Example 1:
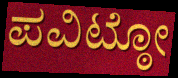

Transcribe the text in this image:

ಪವಿಟ್ಠೋ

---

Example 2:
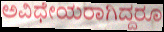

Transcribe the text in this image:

ಅವಿಧೇಯರಾಗಿದ್ದರೂ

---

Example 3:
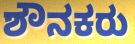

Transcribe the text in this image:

ಶೌನಕರು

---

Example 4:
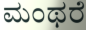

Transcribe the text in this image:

ಮಂಥರೆ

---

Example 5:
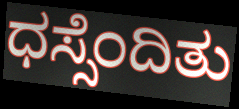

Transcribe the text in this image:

ಧಸ್ಸೆಂದಿತು